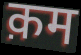
क़म